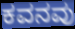
ಕವನವು